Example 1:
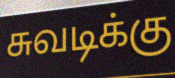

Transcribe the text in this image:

சுவடிக்கு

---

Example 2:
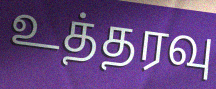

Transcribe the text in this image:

உத்தரவு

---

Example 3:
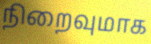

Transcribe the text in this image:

நிறைவுமாக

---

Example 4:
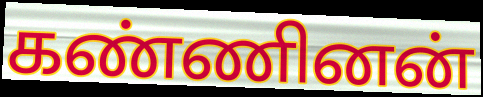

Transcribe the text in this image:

கண்ணினன்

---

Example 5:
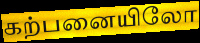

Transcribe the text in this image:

கற்பனையிலோ